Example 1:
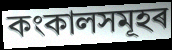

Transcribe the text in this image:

কংকালসমূহৰ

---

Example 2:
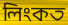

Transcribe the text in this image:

লিংকত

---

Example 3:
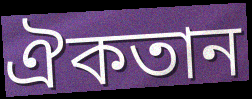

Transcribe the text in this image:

ঐকতান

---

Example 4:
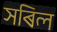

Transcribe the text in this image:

সৰিল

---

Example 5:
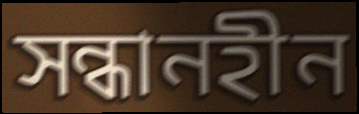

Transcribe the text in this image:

সন্ধানহীন